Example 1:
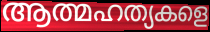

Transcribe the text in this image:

ആത്മഹത്യകളെ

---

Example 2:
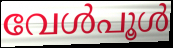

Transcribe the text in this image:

വേൾപൂൾ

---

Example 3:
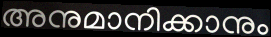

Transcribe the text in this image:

അനുമാനിക്കാനും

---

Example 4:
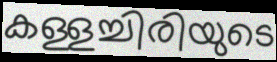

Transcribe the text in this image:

കള്ളച്ചിരിയുടെ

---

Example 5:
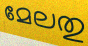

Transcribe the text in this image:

മേലതു